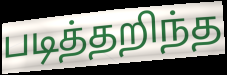
படித்தறிந்த